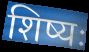
शिष्यः